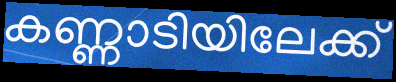
കണ്ണാടിയിലേക്ക്